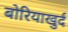
बोरियाखुर्द